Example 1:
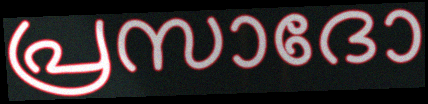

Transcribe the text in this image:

പ്രസാദോ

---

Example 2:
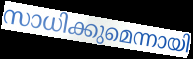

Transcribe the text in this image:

സാധിക്കുമെന്നായി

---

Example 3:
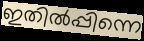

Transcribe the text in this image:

ഇതിൽപ്പിന്നെ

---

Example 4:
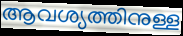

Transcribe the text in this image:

ആവശ്യത്തിനുള്ള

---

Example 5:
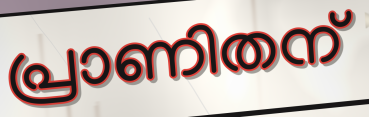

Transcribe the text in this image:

പ്രാണിതന്